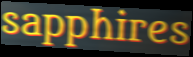
sapphires